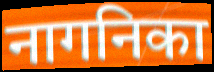
नागनिका